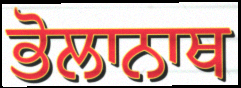
ਭੋਲਾਨਾਥ